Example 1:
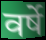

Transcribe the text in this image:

वर्षे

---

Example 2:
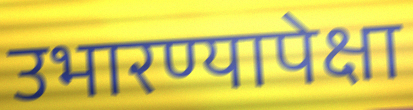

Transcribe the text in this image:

उभारण्यापेक्षा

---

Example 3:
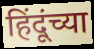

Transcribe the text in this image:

हिंदूंच्या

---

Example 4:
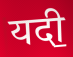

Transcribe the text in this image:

यदी॒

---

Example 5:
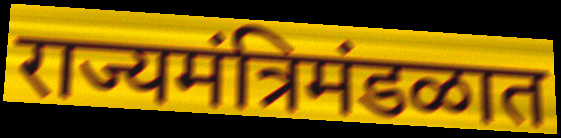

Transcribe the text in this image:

राज्यमंत्रिमंडळात